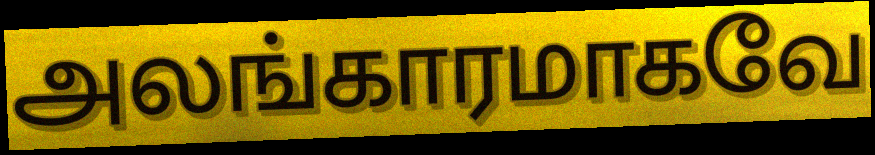
அலங்காரமாகவே